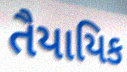
તૈયાયિક